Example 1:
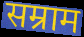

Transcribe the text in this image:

सम्राम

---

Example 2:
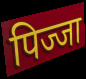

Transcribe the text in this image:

पिज्जा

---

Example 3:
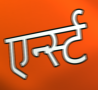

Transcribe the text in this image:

एर्न्स्ट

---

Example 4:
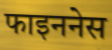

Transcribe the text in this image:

फाइननेस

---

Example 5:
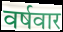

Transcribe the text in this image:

वर्षवार